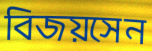
বিজয়সেন